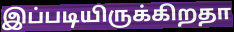
இப்படியிருக்கிறதா